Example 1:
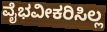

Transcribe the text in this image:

ವೈಭವೀಕರಿಸಿಲ್ಲ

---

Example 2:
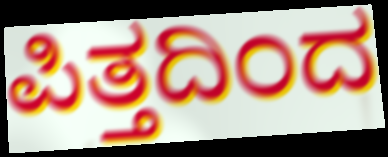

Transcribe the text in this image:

ಪಿತ್ತದಿಂದ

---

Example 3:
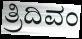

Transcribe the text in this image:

ತ್ರಿದಿವಂ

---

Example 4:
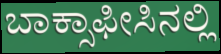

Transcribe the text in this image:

ಬಾಕ್ಸಾಫೀಸಿನಲ್ಲಿ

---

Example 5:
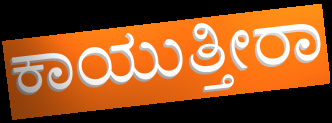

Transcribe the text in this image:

ಕಾಯುತ್ತೀರಾ